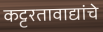
कट्टरतावाद्यांचे